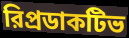
রিপ্রডাকটিভ